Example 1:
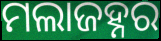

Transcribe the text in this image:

ମଲାଜହ୍ନର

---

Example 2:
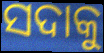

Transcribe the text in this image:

ସଦାକୁ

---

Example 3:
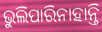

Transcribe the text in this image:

ଭୁଲିପାରିନାହାନ୍ତି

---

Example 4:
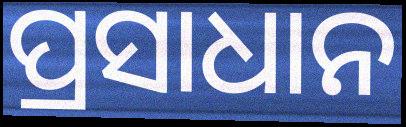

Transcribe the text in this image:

ପ୍ରସାଧାନ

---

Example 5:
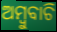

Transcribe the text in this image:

ଅମ୍ବୁବାଚି